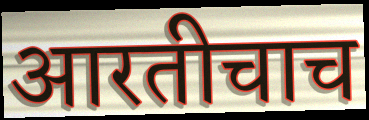
आरतीचाच